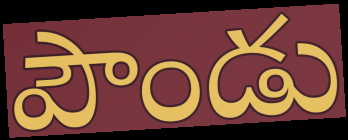
పౌండు